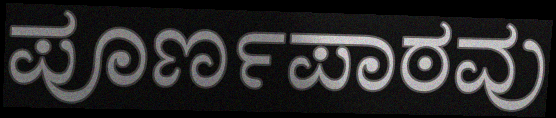
ಪೂರ್ಣಪಾಠವು